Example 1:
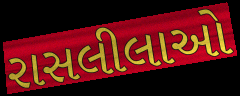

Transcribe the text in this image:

રાસલીલાઓ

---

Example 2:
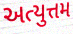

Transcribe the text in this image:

અત્યુત્તમ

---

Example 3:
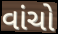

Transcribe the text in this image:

વાંચો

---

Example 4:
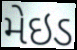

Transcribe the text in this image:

મેઇડ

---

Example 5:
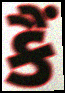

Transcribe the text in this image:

કૈં